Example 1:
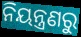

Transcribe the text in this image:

ନିୟନ୍ତ୍ରଣରୁ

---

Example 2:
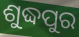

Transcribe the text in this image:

ଶୁଦ୍ଧପୁର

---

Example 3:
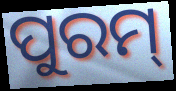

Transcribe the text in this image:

ପୁରମ୍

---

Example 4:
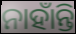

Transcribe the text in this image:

ନାହାଁନ୍ତି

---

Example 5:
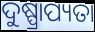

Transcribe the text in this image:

ଦୁଷ୍ପ୍ରାପ୍ୟତା